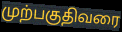
முற்பகுதிவரை